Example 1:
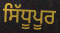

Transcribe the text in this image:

ਸਿੱਧੂਪੂਰ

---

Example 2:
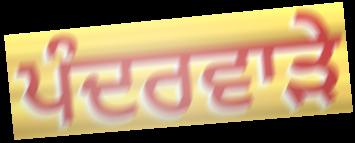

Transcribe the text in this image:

ਪੰਦਰਵਾੜੇ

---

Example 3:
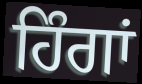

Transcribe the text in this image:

ਹਿੰਗਾਂ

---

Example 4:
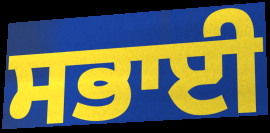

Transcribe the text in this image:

ਸਭਾਈ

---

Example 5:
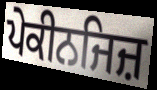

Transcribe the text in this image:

ਪੇਕੀਨਜਿਜ਼